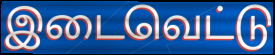
இடைவெட்டு